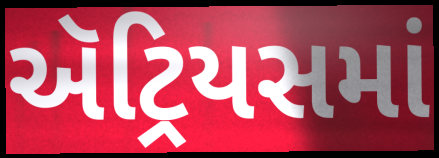
ઍટ્રિયસમાં